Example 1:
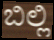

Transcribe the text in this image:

ಬಿಲ್ಲಿ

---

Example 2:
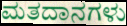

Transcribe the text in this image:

ಮತದಾನಗಳು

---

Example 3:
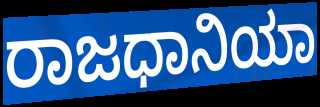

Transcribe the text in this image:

ರಾಜಧಾನಿಯಾ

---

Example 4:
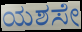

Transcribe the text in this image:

ಯಶಸೇ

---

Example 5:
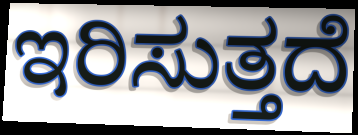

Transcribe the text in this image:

ಇರಿಸುತ್ತದೆ